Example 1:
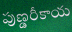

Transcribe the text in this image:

పుణ్డరీకాయ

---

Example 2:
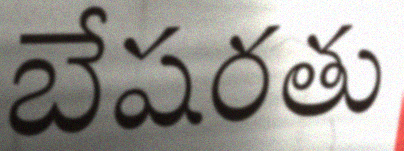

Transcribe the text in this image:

బేషరతు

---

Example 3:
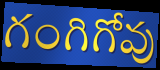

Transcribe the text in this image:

గంగిగోవు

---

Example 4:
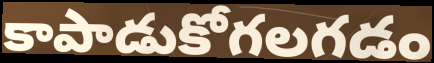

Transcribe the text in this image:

కాపాడుకోగలగడం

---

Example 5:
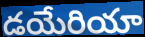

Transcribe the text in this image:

డయేరియా